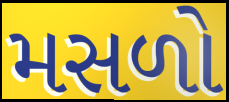
મસળો